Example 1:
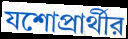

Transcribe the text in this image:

যশোপ্রার্থীর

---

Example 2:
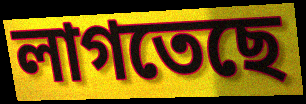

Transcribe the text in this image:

লাগতেছে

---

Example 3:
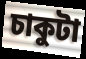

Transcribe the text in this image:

চাকুটা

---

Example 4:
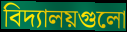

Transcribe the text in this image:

বিদ্যালয়গুলো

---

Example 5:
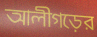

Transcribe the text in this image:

আলীগড়ের